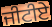
ਜੀਟੀਏ